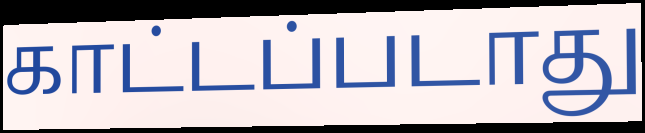
காட்டப்படாது